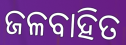
ଜଳବାହିତ